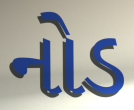
નોડ